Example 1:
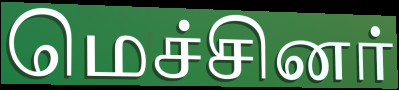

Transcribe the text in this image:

மெச்சினர்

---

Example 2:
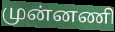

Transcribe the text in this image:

முன்னணி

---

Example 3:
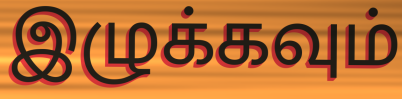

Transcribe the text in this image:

இழுக்கவும்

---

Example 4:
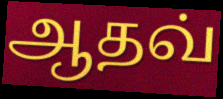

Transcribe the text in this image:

ஆதவ்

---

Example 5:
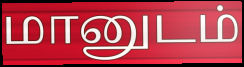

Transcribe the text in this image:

மானுடம்